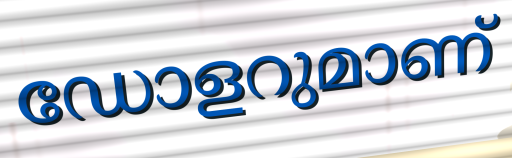
ഡോളറുമാണ്